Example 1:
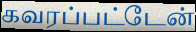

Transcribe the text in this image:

கவரப்பட்டேன்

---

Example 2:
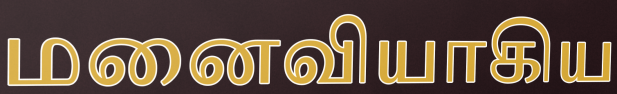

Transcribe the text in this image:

மனைவியாகிய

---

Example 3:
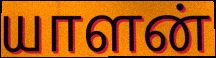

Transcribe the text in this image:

யாளன்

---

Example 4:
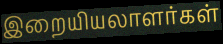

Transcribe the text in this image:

இறையியலாளர்கள்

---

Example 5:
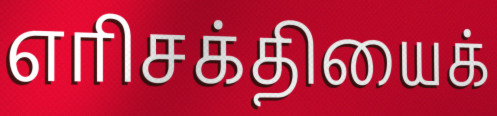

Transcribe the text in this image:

எரிசக்தியைக்